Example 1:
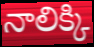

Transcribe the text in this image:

నాలిక్కి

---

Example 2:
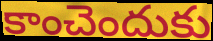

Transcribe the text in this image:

కాంచెందుకు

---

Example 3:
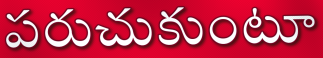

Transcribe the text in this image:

పరుచుకుంటూ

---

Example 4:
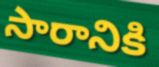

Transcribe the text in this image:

సారానికి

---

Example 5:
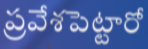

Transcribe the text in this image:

ప్రవేశపెట్టారో